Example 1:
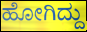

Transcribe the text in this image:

ಹೋಗಿದ್ದು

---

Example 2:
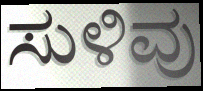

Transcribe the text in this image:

ಸುಳಿವು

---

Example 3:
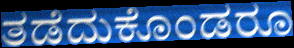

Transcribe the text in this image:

ತಡೆದುಕೊಂಡರೂ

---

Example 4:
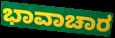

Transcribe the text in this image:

ಭಾವಾಚಾರ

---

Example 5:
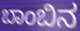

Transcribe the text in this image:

ಬಾಂಬಿನ